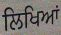
ਲਿਖਿਆਂ